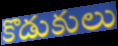
కొడుకులు